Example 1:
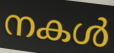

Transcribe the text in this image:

നകൾ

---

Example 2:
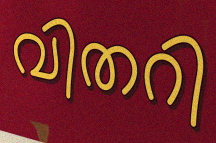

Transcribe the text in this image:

വിതറി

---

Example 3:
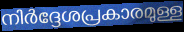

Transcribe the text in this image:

നിർദ്ദേശപ്രകാരമുള്ള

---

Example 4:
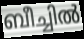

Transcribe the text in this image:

ബീച്ചിൽ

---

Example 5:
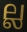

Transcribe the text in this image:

ല്ല